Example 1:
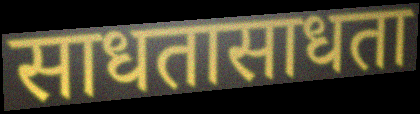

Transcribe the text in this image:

साधतासाधता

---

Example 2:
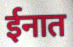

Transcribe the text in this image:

ईनात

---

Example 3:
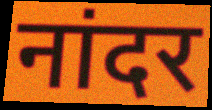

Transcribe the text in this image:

नांदर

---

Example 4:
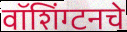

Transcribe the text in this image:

वॉशिंग्टनचे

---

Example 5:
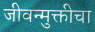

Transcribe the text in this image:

जीवन्मुक्तीचा